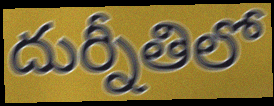
దుర్నీతిలో